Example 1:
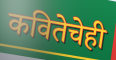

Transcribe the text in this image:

कवितेचेही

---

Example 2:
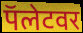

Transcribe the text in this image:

पॅलेटवर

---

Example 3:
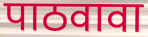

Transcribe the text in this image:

पाठवावा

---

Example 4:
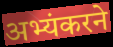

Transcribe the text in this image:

अभ्यंकरने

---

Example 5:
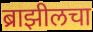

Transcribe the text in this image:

ब्राझीलचा